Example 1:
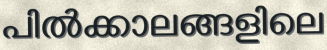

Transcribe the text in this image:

പിൽക്കാലങ്ങളിലെ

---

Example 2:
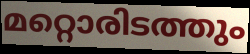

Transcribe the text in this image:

മറ്റൊരിടത്തും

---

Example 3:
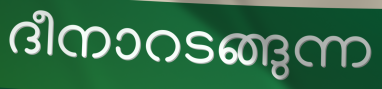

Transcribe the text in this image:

ദീനാറടങ്ങുന്ന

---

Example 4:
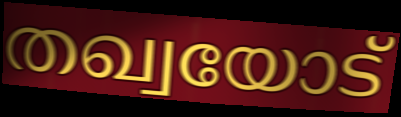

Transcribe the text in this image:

തഖ്വയോട്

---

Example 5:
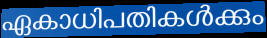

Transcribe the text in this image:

ഏകാധിപതികൾക്കും